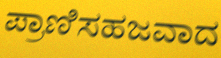
ಪ್ರಾಣಿಸಹಜವಾದ